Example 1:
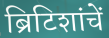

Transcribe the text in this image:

ब्रिटिशांचें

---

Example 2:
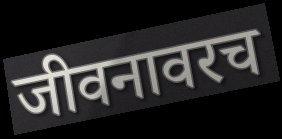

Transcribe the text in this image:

जीवनावरच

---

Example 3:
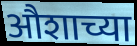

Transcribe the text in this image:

औशाच्या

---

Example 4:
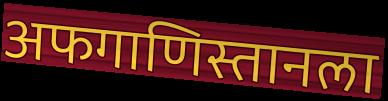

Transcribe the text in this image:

अफगाणिस्तानला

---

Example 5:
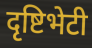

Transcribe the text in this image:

दृष्टिभेटी